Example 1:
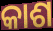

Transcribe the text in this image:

କାଶ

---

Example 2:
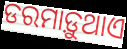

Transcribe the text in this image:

ଡରମାଡ଼ୁଥାଏ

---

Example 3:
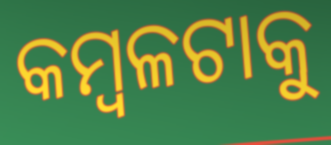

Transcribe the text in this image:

କମ୍ବଳଟାକୁ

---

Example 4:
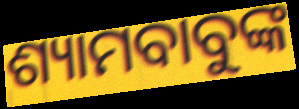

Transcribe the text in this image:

ଶ୍ୟାମବାବୁଙ୍କ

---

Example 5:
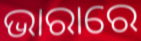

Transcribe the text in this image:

ଭାରାରେ